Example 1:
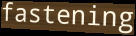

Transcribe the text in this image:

fastening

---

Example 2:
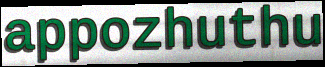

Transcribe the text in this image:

appozhuthu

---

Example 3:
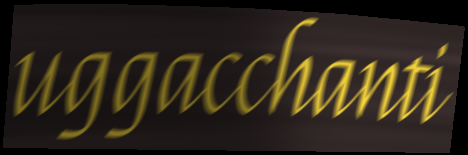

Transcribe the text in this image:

uggacchanti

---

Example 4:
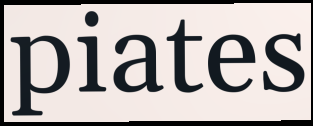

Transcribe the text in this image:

piates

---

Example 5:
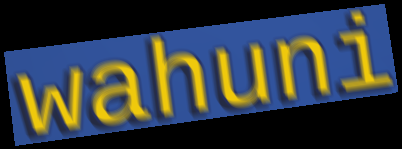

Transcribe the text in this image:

wahuni